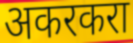
अकरकरा